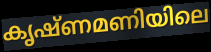
കൃഷ്ണമണിയിലെ